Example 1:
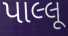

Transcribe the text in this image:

પાલ્લૂ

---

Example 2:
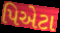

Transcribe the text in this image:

પિએટા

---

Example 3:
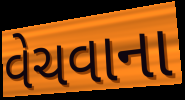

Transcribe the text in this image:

વેચવાના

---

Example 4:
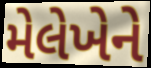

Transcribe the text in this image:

મેલેખેને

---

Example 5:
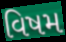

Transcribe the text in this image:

વિષમ